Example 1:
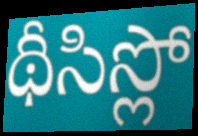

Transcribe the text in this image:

థీసిస్లో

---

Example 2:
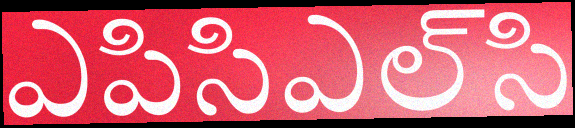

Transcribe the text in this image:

ఎపిసిఎల్‌సి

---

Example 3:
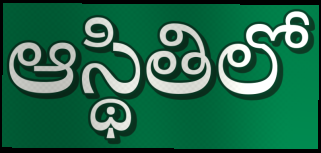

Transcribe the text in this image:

ఆస్థితిలో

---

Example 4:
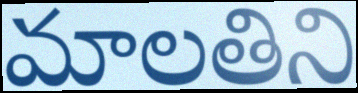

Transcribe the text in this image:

మాలతిని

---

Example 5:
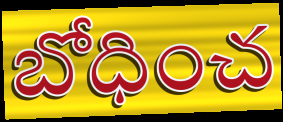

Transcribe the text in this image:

బోధించ